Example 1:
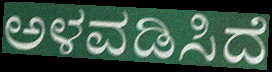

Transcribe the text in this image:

ಅಳವಡಿಸಿದೆ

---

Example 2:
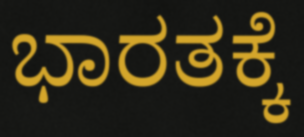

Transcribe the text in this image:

ಭಾರತಕ್ಕೆ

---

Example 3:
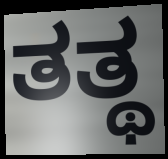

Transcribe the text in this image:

ತತ್ಥ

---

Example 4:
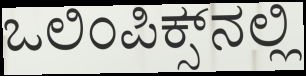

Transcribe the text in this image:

ಒಲಿಂಪಿಕ್ಸ್‌ನಲ್ಲಿ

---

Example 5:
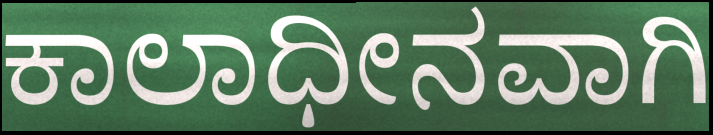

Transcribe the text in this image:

ಕಾಲಾಧೀನವಾಗಿ